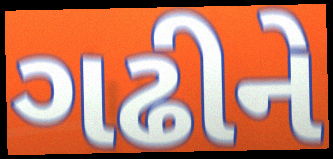
ગઢીને